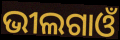
ଭୀଲଗାଓଁ